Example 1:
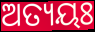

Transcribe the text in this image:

ଅତ୍ୟୟଃ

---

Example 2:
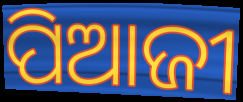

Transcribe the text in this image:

ପିଆଜୀ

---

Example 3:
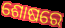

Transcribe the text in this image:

ଶୋଷରେ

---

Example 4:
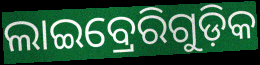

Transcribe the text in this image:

ଲାଇବ୍ରେରିଗୁଡ଼ିକ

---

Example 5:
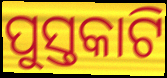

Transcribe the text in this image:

ପୁସ୍ତକାଟି